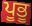
ਪੂਭੂ